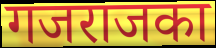
गजराजका